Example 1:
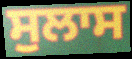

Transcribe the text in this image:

ਸੁਲਾਸ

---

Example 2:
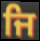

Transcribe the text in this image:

ਜਿ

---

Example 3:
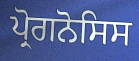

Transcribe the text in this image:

ਪ੍ਰੋਗਨੋਸਿਸ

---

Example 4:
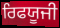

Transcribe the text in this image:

ਰਿਫਯੂਜੀ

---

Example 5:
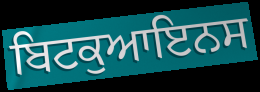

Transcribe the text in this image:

ਬਿਟਕੁਆਇਨਸ